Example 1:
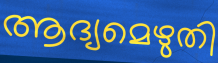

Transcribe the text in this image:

ആദ്യമെഴുതി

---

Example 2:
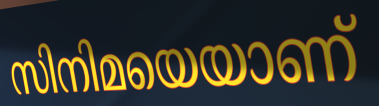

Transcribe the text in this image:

സിനിമയെയാണ്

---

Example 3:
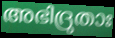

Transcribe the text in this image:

അഭിദ്രുതാഃ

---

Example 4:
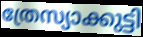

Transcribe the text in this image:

ത്രേസ്യാക്കുട്ടി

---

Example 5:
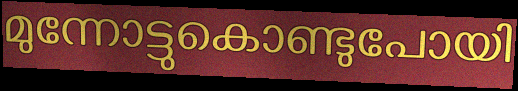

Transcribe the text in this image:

മുന്നോട്ടുകൊണ്ടുപോയി